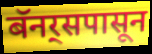
बॅनर्सपासून